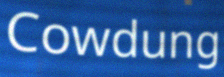
Cowdung